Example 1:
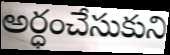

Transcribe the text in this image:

అర్ధంచేసుకుని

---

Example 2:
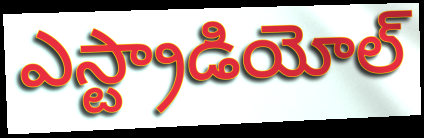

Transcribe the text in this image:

ఎస్ట్రాడియోల్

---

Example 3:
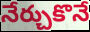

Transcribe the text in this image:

నేర్చుకొనే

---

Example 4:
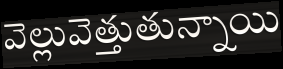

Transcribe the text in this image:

వెల్లువెత్తుతున్నాయి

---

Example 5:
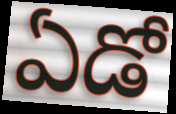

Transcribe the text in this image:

ఏడో